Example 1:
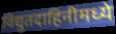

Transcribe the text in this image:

विद्युतदाहिनीमध्ये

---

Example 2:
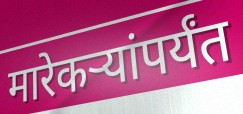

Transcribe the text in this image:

मारेकऱ्यांपर्यंत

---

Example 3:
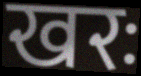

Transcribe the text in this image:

खरः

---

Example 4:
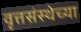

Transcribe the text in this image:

वृत्तसंस्थेच्या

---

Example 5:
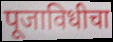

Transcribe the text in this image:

पूजाविधीचा